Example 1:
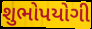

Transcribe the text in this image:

શુભોપયોગી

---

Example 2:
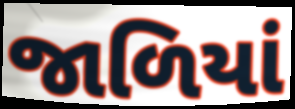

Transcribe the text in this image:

જાળિયાં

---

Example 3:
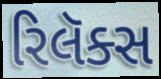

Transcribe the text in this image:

રિલૅક્સ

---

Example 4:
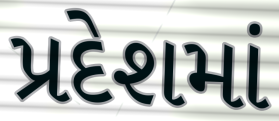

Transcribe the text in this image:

પ્રદેશમાં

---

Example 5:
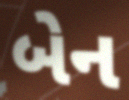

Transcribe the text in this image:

બેન